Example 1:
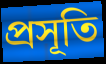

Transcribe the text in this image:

প্রসূতি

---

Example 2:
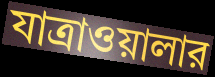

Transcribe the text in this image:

যাত্রাওয়ালার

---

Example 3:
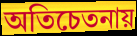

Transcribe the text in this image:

অতিচেতনায়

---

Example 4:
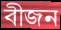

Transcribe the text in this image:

বীজন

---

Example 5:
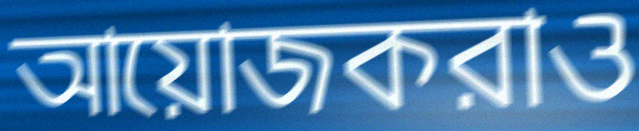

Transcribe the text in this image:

আয়োজকরাও